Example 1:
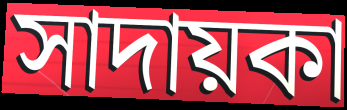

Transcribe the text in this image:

সাদায়কা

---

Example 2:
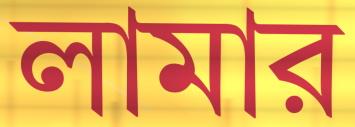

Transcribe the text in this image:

লামার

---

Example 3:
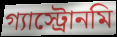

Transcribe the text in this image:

গ্যাস্ট্রোনমি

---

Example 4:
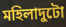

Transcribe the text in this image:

মহিলাদুটো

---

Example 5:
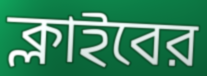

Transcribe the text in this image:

ক্লাইবের